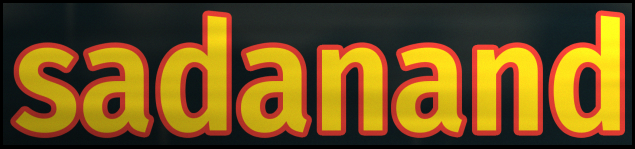
sadanand